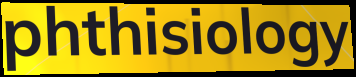
phthisiology